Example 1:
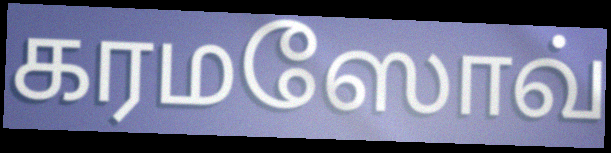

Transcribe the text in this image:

கரமஸோவ்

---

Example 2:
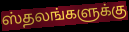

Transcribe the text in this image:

ஸ்தலங்களுக்கு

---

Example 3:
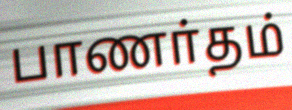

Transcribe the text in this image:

பாணர்தம்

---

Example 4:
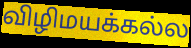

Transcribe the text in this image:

விழிமயக்கல்ல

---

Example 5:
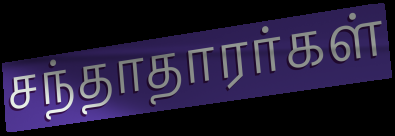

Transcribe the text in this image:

சந்தாதாரர்கள்